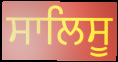
ਸਾਲਿਸੂ